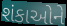
શંકાઓને